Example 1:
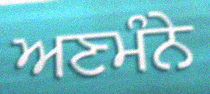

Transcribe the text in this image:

ਅਣਮੰਨੇ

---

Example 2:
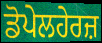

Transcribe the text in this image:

ਡੋਪੇਲਹੇਰਜ਼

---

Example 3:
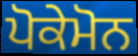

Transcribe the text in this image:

ਪੋਕੇਮੋਨ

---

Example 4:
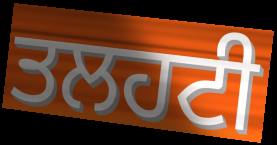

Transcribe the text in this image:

ਤਲਹਟੀ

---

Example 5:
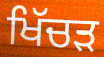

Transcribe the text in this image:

ਖਿੱਚੜ